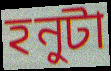
হনুটা